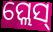
ପ୍ଲେସ୍